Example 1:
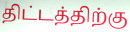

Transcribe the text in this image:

திட்டத்திற்கு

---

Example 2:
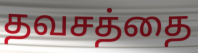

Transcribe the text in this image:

தவசத்தை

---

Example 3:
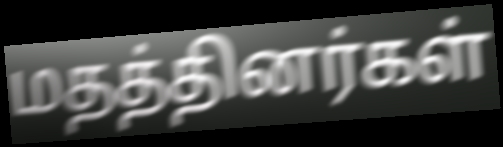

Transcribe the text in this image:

மதத்தினர்கள்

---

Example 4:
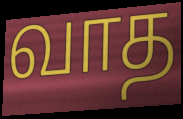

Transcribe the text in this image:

வாத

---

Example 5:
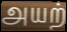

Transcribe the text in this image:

அயற்